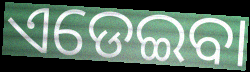
ଏଡେଇବା